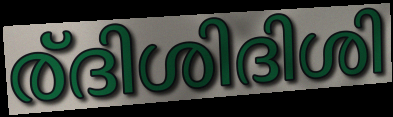
ര്ദിശിദിശി